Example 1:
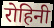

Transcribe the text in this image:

रोहिनी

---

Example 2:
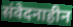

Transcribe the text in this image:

संवेदनाहीन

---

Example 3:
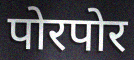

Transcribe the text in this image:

पोरपोर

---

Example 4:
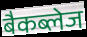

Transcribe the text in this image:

बैकब्लेज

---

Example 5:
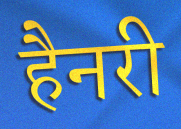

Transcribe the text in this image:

हैनरी